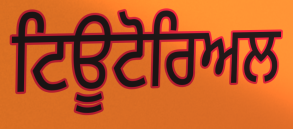
ਟਿਊਟੋਰਿਅਲ